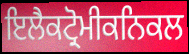
ਇਲੈਕਟ੍ਰੋਮੀਕਨਿਕਲ